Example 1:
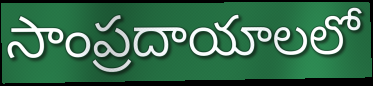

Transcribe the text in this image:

సాంప్రదాయాలలో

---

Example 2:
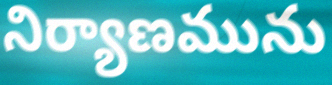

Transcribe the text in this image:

నిర్యాణమును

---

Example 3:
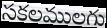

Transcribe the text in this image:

సకలములగు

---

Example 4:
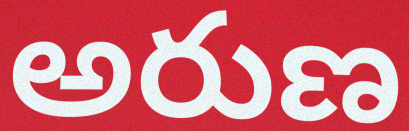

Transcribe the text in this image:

అరుణ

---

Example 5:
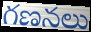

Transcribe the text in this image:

గణనలు